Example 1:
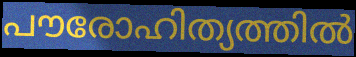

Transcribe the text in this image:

പൗരോഹിത്യത്തിൽ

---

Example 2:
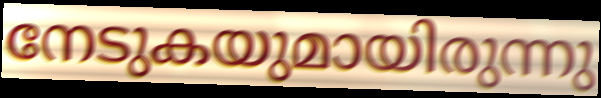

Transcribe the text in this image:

നേടുകയുമായിരുന്നു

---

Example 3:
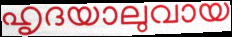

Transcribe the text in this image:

ഹൃദയാലുവായ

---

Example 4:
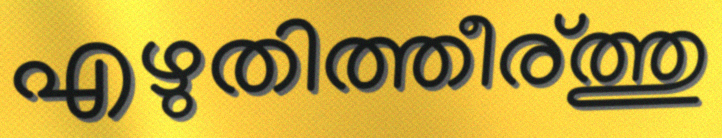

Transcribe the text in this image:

എഴുതിത്തീര്ത്തു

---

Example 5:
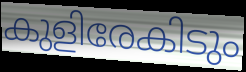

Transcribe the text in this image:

കുളിരേകിടും